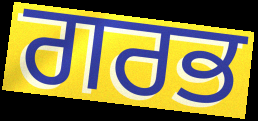
ਗਰਭ